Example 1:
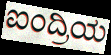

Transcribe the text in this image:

ಐಂದ್ರಿಯ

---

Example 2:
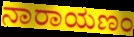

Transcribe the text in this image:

ನಾರಾಯಣಂ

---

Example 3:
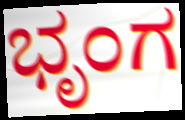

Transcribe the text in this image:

ಭೃಂಗ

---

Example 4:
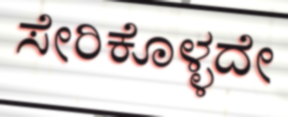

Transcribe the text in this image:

ಸೇರಿಕೊಳ್ಳದೇ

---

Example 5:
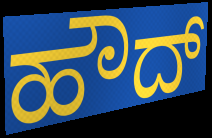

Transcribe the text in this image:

ಹೌದ್